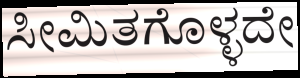
ಸೀಮಿತಗೊಳ್ಳದೇ